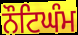
ਨੌਟਿਘੰਮ